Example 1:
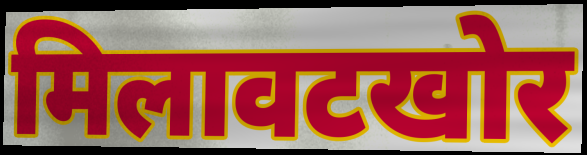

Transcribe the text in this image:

मिलावटखोर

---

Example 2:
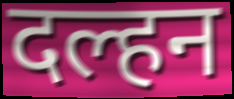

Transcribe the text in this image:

दल्हन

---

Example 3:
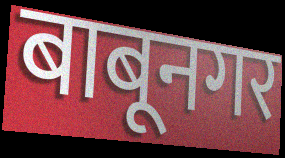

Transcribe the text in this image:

बाबूनगर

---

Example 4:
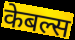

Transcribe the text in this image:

केबल्स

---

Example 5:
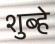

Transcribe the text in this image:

शुब्हे